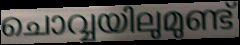
ചൊവ്വയിലുമുണ്ട്